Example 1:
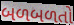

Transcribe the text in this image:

બળબળતો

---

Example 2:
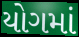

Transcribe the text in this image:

યોગમાં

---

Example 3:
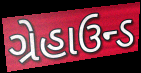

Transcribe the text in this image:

ગ્રેહાઉન્ડ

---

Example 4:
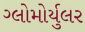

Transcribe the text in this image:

ગ્લોમોર્યુલર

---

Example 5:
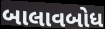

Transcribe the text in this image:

બાલાવબોધ